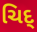
ચિદ્